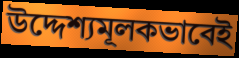
উদ্দেশ্যমূলকভাবেই